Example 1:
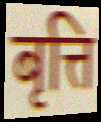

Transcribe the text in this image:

बृत्ति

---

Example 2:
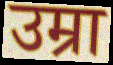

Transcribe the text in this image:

उम्रा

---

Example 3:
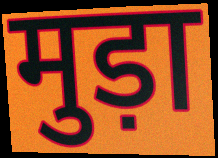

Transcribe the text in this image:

मुड़ा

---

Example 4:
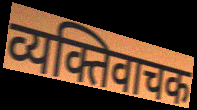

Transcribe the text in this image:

व्यक्तिवाचक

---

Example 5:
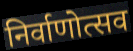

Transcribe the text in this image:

निर्वाणोत्सव